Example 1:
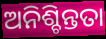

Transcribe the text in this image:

ଅନିଶ୍ଚିନ୍ତତା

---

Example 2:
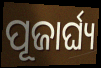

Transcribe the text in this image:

ପୂଜାର୍ଘ୍ୟ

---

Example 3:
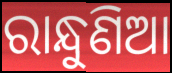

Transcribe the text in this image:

ରାନ୍ଧୁଣିଆ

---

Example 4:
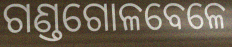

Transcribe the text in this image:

ଗଣ୍ଡଗୋଳବେଳେ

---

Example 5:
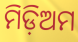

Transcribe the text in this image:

ମିଡ଼ିଅମ